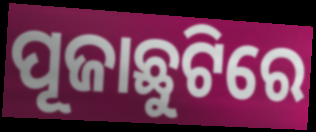
ପୂଜାଛୁଟିରେ